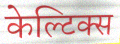
केल्टिक्स